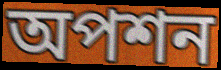
অপশন